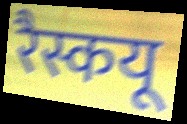
रैस्कयू